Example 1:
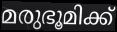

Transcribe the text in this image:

മരുഭൂമിക്ക്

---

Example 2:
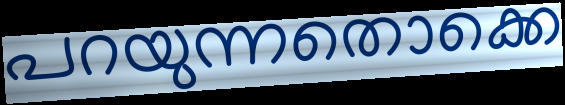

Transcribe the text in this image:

പറയുന്നതൊക്കെ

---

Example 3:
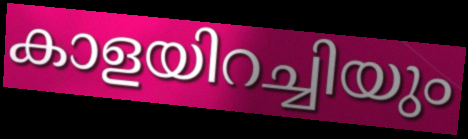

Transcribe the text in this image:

കാളയിറച്ചിയും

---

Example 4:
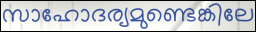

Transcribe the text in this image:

സാഹോദര്യമുണ്ടെങ്കിലേ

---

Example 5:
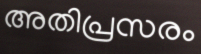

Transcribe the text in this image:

അതിപ്രസരം